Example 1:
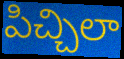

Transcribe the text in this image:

పిచ్చిలా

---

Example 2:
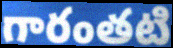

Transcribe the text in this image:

గారంతటి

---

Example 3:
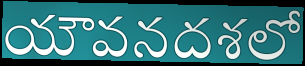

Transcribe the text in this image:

యౌవనదశలో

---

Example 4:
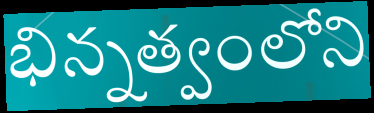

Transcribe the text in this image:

భిన్నత్వంలోని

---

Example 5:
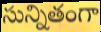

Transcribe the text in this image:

సున్నితంగా